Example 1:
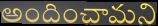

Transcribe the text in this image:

అందించామని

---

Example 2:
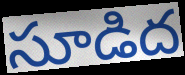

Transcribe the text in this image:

సూడిద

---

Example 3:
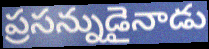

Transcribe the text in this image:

ప్రసన్నుడైనాడు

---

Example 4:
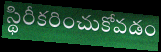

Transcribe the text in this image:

స్థిరీకరించుకోవడం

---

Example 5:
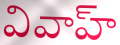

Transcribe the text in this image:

వివాహ్